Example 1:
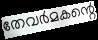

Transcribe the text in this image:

തേവർമകന്റെ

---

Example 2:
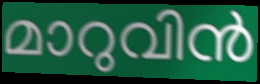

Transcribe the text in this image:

മാറുവിൻ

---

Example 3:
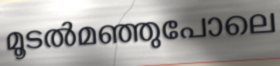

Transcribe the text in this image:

മൂടൽമഞ്ഞുപോലെ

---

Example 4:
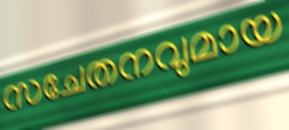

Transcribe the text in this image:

സചേതനവുമായ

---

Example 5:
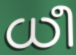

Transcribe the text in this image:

ധീ